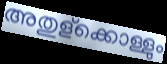
അതുള്ക്കൊള്ളും